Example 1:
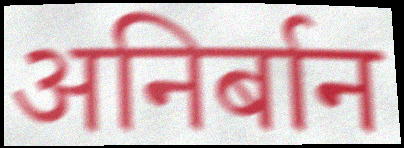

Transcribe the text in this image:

अनिर्बान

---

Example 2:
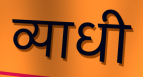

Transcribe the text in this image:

व्याधी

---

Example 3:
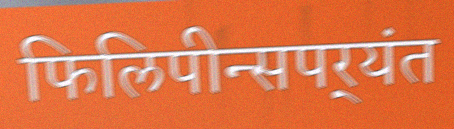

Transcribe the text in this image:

फिलिपीन्सपर्यंत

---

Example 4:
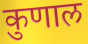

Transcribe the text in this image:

कुणाल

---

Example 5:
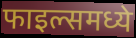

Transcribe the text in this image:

फाइल्समध्ये